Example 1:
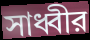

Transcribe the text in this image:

সাধ্বীর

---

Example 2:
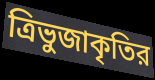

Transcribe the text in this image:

ত্রিভুজাকৃতির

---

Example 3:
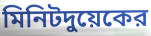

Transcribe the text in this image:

মিনিটদুয়েকের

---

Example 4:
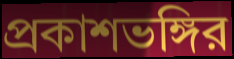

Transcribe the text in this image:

প্রকাশভঙ্গির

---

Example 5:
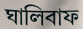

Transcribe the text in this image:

ঘালিবাফ